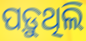
ପଡ଼ୁଥିଲି